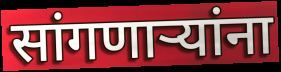
सांगणार्‍यांना